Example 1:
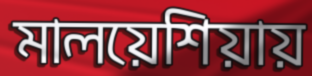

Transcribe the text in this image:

মালয়েশিয়ায়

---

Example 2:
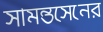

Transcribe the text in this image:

সামন্তসেনের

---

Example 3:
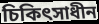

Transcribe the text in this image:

চিকিৎসাধীন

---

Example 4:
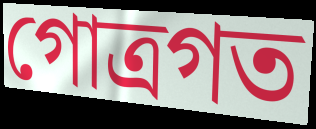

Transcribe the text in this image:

গোত্রগত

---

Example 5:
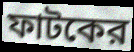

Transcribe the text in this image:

ফাটকের